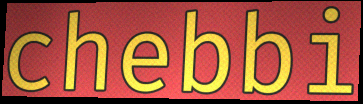
chebbi